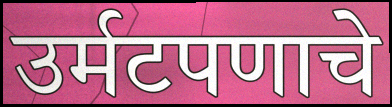
उर्मटपणाचे